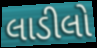
લાડીલો